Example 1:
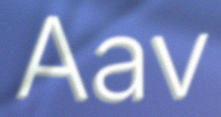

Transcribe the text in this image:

Aav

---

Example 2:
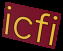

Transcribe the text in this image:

icfi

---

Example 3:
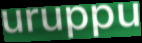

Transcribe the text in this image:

uruppu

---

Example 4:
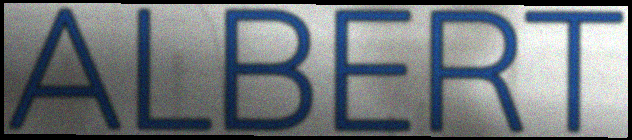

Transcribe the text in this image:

ALBERT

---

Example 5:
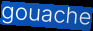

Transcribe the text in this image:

gouache